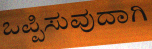
ಒಪ್ಪಿಸುವುದಾಗಿ